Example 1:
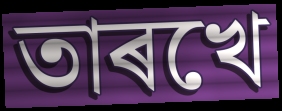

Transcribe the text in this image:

তাৰখে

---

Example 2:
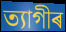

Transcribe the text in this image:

ত্যাগীৰ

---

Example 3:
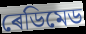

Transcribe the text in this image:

ৰেডিমেড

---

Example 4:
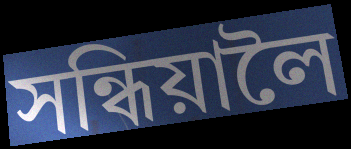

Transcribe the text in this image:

সন্ধিয়ালৈ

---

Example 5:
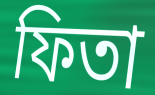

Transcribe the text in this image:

ফিতা